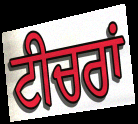
ਟੀਚਰਾਂ